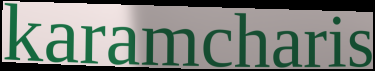
karamcharis